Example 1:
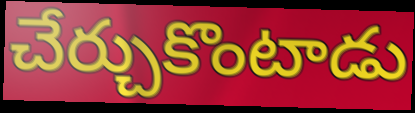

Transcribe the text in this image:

చేర్చుకొంటాడు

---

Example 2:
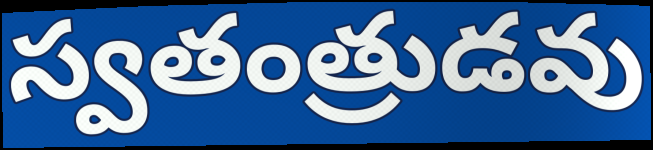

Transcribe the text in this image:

స్వతంత్రుడవు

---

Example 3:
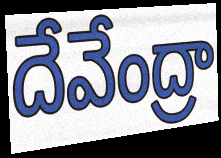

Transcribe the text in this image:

దేవేంద్రా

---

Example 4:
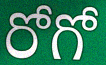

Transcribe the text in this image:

రోగో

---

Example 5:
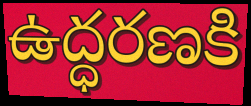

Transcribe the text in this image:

ఉద్ధరణకి